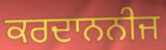
ਕਰਦਾਨਨੀਜ